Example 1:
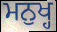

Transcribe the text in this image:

ਮਨੁਖ੍ਹ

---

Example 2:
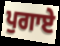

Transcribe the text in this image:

ਪੁਗਾਏ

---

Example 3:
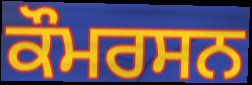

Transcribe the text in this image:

ਕੌਮਰਸਨ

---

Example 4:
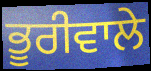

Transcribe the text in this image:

ਭੂਰੀਵਾਲੇ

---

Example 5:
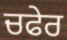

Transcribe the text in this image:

ਚਫੇਰ